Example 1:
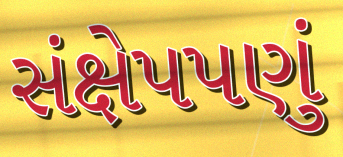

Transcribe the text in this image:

સંક્ષેપપણું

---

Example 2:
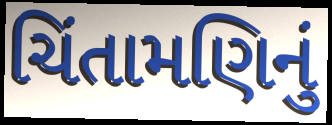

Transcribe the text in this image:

ચિંતામણિનું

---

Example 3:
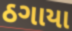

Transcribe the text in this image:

ઠગાયા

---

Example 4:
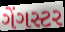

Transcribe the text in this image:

ગેંગસ્ટર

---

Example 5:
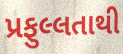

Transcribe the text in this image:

પ્રફુલ્લતાથી